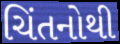
ચિંતનોથી